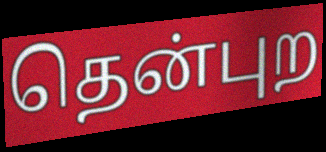
தென்புற